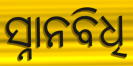
ସ୍ନାନବିଧି